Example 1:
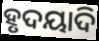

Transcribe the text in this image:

ହୃଦୟାଦି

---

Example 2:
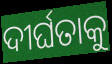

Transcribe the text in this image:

ଦୀର୍ଘତାକୁ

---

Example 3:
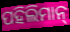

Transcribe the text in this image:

ପହିଲିମାନ୍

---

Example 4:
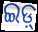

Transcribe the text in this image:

ଇଡ଼୍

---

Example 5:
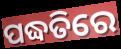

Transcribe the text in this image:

ପଦ୍ଧତିରେ